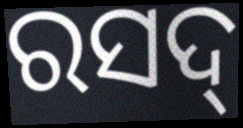
ରସଦ୍